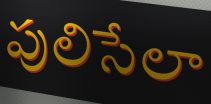
పులిసేలా